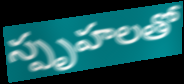
స్పృహలతో